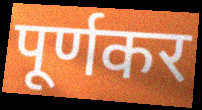
पूर्णकर